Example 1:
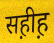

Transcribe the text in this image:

सह़ीह़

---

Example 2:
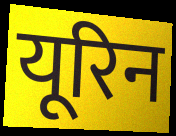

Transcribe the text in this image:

यूरिन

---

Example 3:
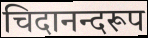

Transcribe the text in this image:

चिदानन्दरूप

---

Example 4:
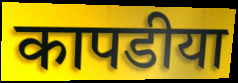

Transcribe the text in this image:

कापडीया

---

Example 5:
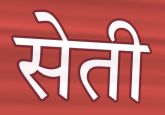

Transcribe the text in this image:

सेती